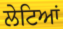
ਲੇਟਿਆਂ